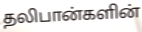
தலிபான்களின்